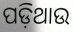
ପଡ଼ିଥାଉ